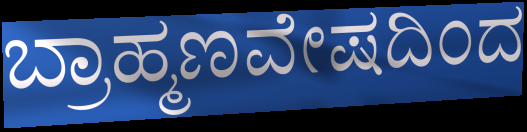
ಬ್ರಾಹ್ಮಣವೇಷದಿಂದ